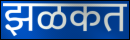
झळकत